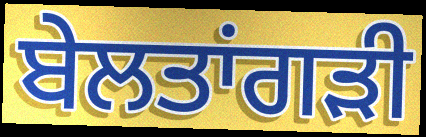
ਬੇਲਤਾਂਗੜੀ